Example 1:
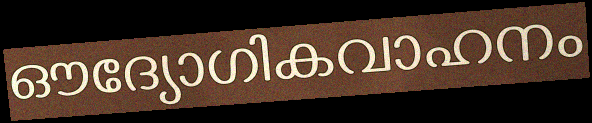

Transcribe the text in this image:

ഔദ്യോഗികവാഹനം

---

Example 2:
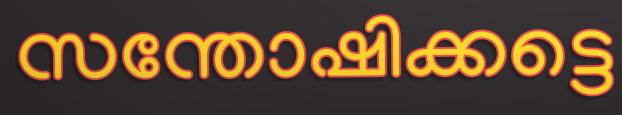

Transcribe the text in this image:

സന്തോഷിക്കട്ടെ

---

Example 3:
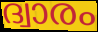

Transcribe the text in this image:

ദ്വാരം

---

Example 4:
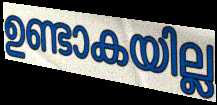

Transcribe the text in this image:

ഉണ്ടാകയില്ല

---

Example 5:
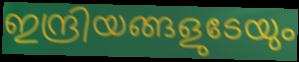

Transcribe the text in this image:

ഇന്ദ്രിയങ്ങളുടേയും